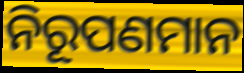
ନିରୂପଣମାନ